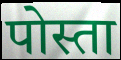
पोस्ता